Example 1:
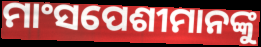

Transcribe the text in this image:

ମାଂସପେଶୀମାନଙ୍କୁ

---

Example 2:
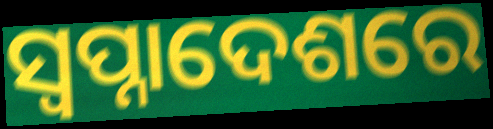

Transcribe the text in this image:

ସ୍ଵପ୍ନାଦେଶରେ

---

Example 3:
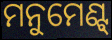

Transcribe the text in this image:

ମନୁମେଣ୍ଟ୍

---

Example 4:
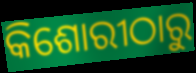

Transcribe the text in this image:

କିଶୋରୀଠାରୁ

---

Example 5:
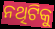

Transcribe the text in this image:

ନଥିଟିକୁ